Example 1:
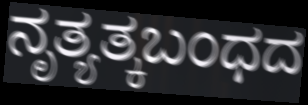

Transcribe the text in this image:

ನೃತ್ಯತ್ಕಬಂಧದ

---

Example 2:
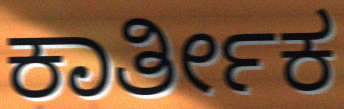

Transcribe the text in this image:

ಕಾರ್ತೀಕ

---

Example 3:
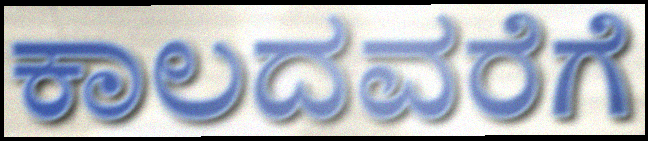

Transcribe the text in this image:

ಕಾಲದವರೆಗೆ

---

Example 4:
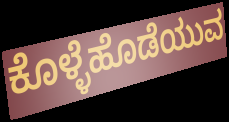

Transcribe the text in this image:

ಕೊಳ್ಳೆಹೊಡೆಯುವ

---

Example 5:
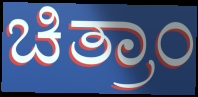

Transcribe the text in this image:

ಚಿತ್ರಾಂ